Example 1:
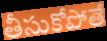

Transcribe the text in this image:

తీసుకోపోతే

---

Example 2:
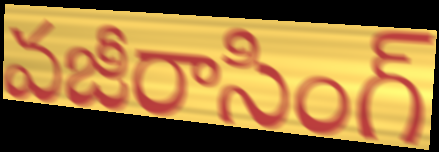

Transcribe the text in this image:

వజీరాసింగ్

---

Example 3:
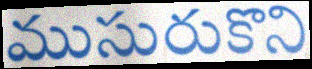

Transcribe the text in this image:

ముసురుకొని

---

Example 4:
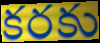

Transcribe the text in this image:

కరకు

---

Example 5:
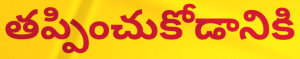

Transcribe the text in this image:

తప్పించుకోడానికి